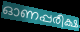
ഓണപ്പരീക്ഷ